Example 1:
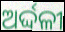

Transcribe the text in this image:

ଅର୍ଦ୍ଦଳୀ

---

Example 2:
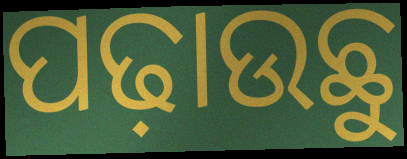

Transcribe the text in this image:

ପଢ଼ାଉଛୁ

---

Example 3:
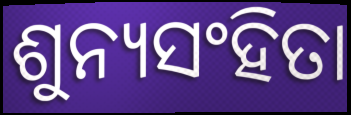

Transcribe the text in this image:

ଶୁନ୍ୟସଂହିତା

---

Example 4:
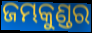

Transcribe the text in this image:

ଜମ୍ଭକୁଣ୍ଡର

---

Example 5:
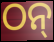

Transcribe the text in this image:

ଠନ୍